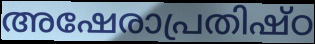
അഷേരാപ്രതിഷ്ഠ